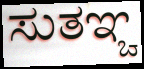
ಸುತಞ್ಚ